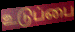
உடுப்பை